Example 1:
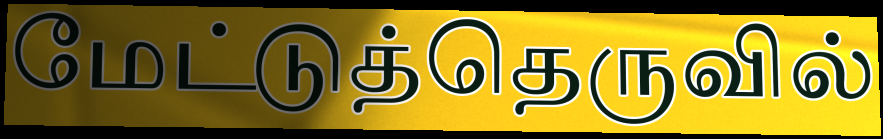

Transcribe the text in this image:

மேட்டுத்தெருவில்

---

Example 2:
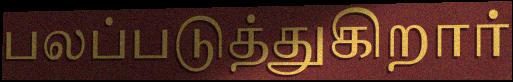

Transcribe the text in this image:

பலப்படுத்துகிறார்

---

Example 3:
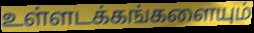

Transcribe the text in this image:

உள்ளடக்கங்களையும்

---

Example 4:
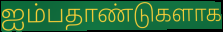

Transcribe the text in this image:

ஐம்பதாண்டுகளாக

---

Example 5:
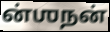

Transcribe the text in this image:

ன்ஶநன்